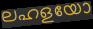
ലഹളയോ